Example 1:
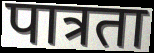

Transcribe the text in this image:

पात्रता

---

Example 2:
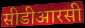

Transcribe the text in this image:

सीडीआरसी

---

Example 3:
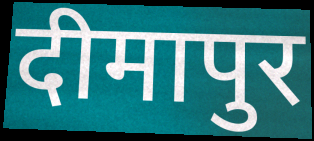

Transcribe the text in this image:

दीमापुर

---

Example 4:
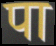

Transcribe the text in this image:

पा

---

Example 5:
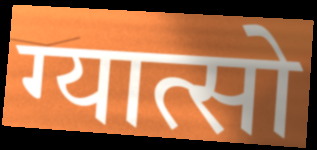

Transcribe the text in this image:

ग्यात्सो